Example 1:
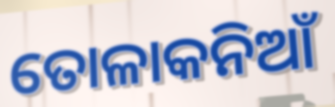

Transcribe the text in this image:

ତୋଳାକନିଆଁ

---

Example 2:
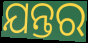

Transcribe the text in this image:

ଯନ୍ତର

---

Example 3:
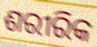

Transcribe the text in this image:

ଶରୀରିକ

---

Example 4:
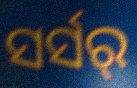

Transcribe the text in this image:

ସର୍ସର୍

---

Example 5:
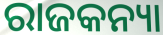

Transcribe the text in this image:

ରାଜକନ୍ୟା